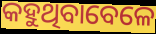
କହୁଥିବାବେଳେ